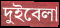
দুইবেলা